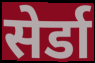
सेर्डा